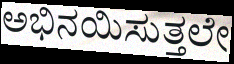
ಅಭಿನಯಿಸುತ್ತಲೇ